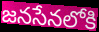
జనసేనలోకి